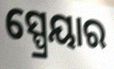
ସ୍ପ୍ରେୟାର